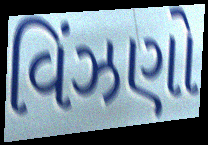
વિંઝણો